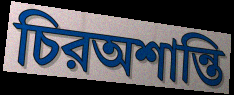
চিরঅশান্তি